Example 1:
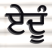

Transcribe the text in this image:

ਏਦੂੰ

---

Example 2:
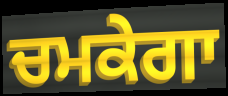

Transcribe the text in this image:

ਚਮਕੇਗਾ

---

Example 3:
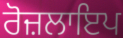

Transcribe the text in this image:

ਰੋਜ਼ਲਾਇਪ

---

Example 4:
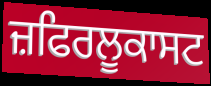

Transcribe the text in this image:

ਜ਼ਫਿਰਲੂਕਾਸਟ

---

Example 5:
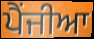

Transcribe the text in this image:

ਪੈਂਜੀਆ